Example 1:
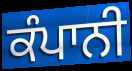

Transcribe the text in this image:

ਕੰਪਾਨੀ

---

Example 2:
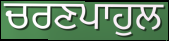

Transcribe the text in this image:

ਚਰਣਪਾਹੁਲ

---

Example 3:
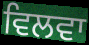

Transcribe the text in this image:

ਵਿਲਵਾ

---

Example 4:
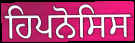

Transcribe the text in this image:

ਹਿਪਨੋਸਿਸ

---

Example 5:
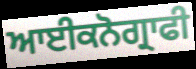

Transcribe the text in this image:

ਆਈਕਨੋਗ੍ਰਾਫੀ